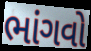
ભાંગવો